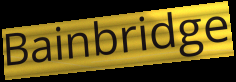
Bainbridge